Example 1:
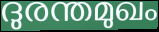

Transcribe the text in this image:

ദുരന്തമുഖം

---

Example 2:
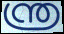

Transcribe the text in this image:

ന്ത്ര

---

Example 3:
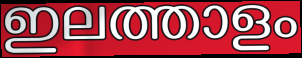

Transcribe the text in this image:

ഇലത്താളം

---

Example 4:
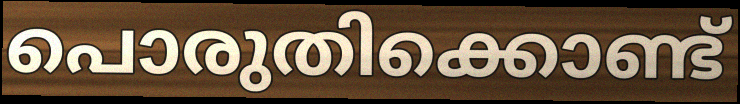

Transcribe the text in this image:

പൊരുതിക്കൊണ്ട്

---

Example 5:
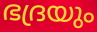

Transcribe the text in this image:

ഭദ്രയും